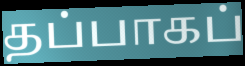
தப்பாகப்